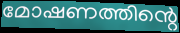
മോഷണത്തിന്റെ